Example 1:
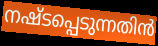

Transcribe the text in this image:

നഷ്ടപ്പെടുന്നതിൻ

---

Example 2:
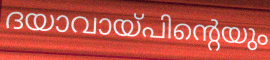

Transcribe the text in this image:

ദയാവായ്പിന്റെയും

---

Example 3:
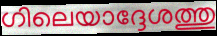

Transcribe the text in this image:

ഗിലെയാദ്ദേശത്തു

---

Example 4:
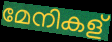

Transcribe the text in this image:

മേനികള്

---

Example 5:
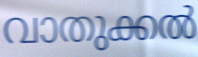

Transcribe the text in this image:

വാതുക്കൽ